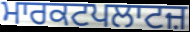
ਮਾਰਕਟਪਲਾਟਜ਼